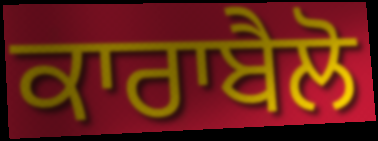
ਕਾਰਾਬੈਲੋ